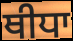
ਥੀਧਾ